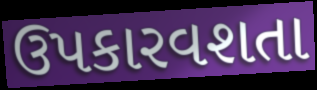
ઉપકારવશતા